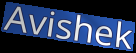
Avishek